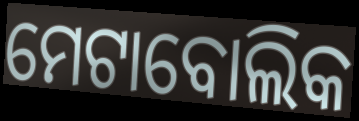
ମେଟାବୋଲିକ